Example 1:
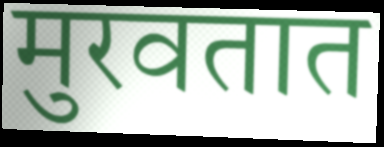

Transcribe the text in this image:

मुरवतात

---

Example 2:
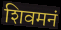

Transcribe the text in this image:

शिवमनं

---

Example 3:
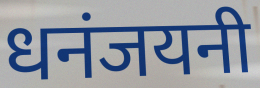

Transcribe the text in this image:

धनंजयनी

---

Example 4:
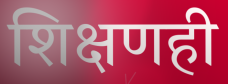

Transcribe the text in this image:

शिक्षणही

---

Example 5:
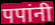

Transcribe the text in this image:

पपांनी